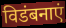
विडंबनाएं